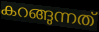
കറങ്ങുന്നത്